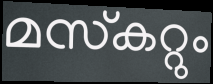
മസ്‌കറ്റും